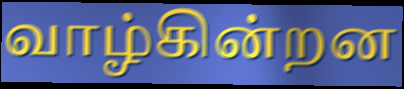
வாழ்கின்றன